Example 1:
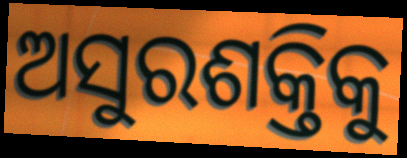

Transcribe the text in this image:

ଅସୁରଶକ୍ତିକୁ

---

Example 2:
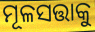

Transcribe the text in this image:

ମୂଳସତ୍ତାକୁ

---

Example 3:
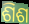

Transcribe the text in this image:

ଶିଶ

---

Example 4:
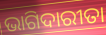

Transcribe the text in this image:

ଭାଗିଦାରୀତା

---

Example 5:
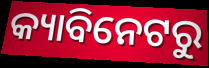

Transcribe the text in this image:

କ୍ୟାବିନେଟରୁ